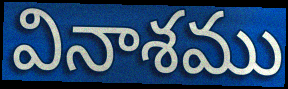
వినాశము